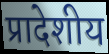
प्रादेशीय